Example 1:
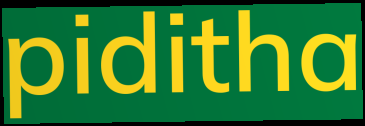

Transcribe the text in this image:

piditha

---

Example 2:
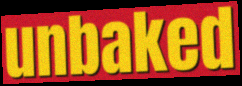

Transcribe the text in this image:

unbaked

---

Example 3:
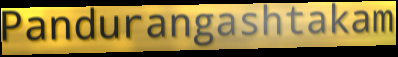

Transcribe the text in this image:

Pandurangashtakam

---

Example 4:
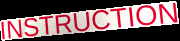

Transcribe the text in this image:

INSTRUCTION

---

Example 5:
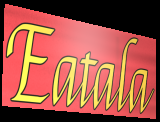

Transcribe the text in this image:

Eatala